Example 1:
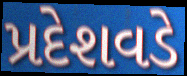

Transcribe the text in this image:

પ્રદેશવડે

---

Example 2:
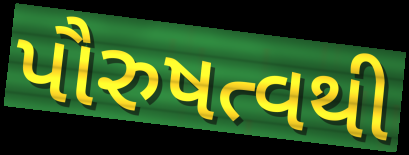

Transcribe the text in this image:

પૌરુષત્વથી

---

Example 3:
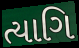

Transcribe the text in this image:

ત્યાગિ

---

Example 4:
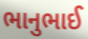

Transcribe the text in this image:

ભાનુભાઈ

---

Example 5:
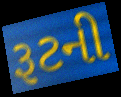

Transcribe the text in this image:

રૂટની